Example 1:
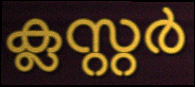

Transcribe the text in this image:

ക്ലസ്റ്റർ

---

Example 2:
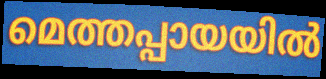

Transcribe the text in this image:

മെത്തപ്പായയിൽ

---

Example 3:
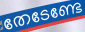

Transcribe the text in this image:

തേടേണ്ടേ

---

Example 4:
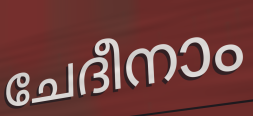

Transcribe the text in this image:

ചേദീനാം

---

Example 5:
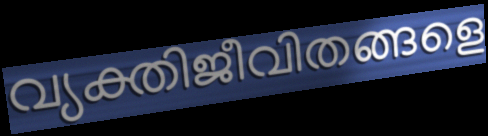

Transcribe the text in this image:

വ്യക്തിജീവിതങ്ങളെ